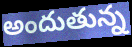
అందుతున్న